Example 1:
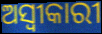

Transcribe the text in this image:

ଅସ୍ଵୀକାରୀ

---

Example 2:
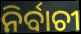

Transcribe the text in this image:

ନିର୍ବାଚୀ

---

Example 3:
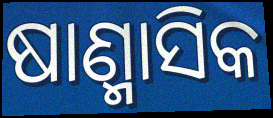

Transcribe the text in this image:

ଷାଣ୍ମାସିକ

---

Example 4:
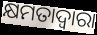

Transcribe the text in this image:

କ୍ଷମତାଦ୍ୱାରା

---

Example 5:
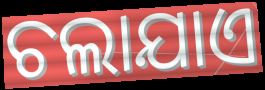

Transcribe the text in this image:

ଚଲାଯାଏ